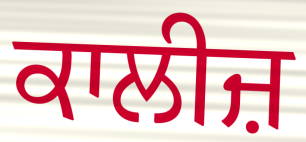
ਕਾਲੀਜ਼